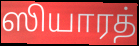
ஸியாரத்